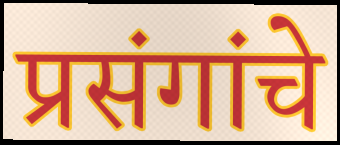
प्रसंगांचे